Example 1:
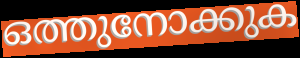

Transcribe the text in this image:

ഒത്തുനോക്കുക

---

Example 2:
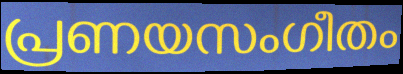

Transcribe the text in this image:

പ്രണയസംഗീതം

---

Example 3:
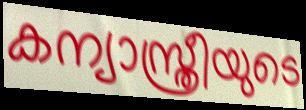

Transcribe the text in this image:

കന്യാസ്ത്രീയുടെ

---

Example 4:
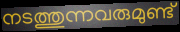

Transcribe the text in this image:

നടത്തുന്നവരുമുണ്ട്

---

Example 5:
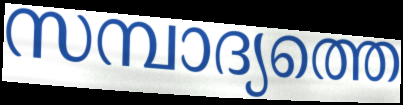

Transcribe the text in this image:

സമ്പാദ്യത്തെ